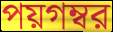
পয়গম্বর